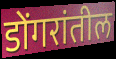
डोंगरांतील